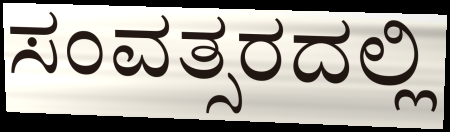
ಸಂವತ್ಸರದಲ್ಲಿ